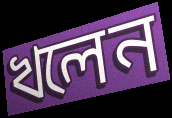
খলেন